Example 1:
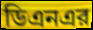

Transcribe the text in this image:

ডিএনএর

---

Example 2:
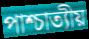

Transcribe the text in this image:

পাশ্চাত্যীয়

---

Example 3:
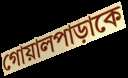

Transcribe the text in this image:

গোয়ালপাড়াকে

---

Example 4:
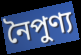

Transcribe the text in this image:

নৈপুণ্য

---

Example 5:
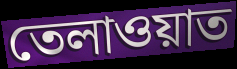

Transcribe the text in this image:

তেলাওয়াত